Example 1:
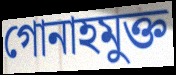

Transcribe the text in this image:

গোনাহমুক্ত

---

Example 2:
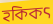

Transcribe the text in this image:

হকিকৎ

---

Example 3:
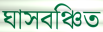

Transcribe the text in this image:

ঘাসবঞ্চিত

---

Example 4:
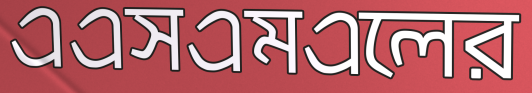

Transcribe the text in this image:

এএসএমএলের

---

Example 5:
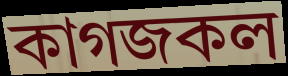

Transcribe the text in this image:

কাগজকল